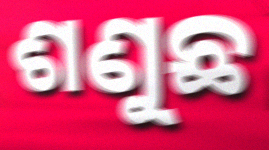
ଶଣୁଛ